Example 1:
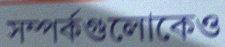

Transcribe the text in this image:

সম্পর্কগুলোকেও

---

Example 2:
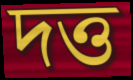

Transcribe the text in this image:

দত্ত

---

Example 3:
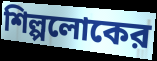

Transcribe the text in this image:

শিল্পলোকের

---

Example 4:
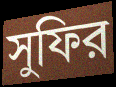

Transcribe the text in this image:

সুফির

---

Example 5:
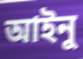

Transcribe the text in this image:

আইনু